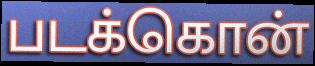
படக்கொன்